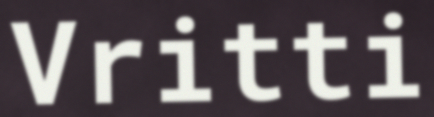
Vritti